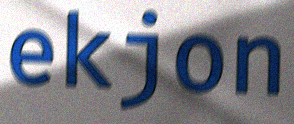
ekjon